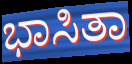
ಭಾಸಿತಾ